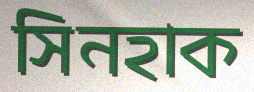
সিনহাক